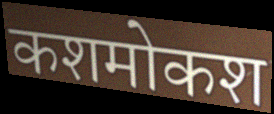
कशमोकश